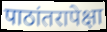
पाठांतरापेक्षा